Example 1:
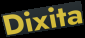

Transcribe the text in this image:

Dixita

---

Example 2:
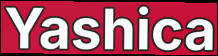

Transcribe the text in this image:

Yashica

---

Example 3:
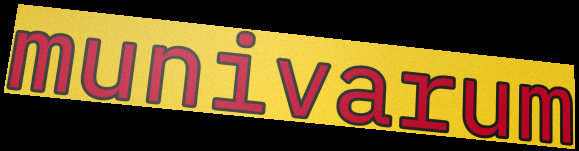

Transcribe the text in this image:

munivarum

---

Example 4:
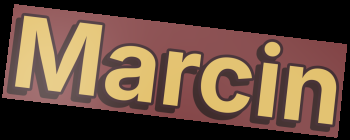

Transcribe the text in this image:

Marcin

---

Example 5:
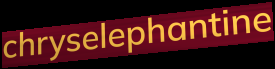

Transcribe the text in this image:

chryselephantine